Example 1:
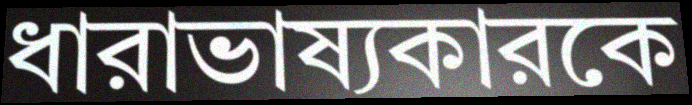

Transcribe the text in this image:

ধারাভাষ্যকারকে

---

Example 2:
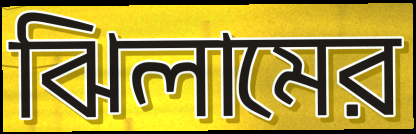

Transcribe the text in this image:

ঝিলামের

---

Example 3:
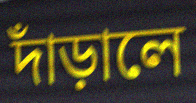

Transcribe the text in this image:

দাঁড়ালে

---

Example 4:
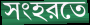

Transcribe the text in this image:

সংহরতে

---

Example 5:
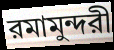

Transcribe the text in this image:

রমামুন্দরী